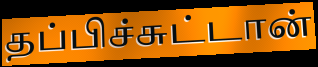
தப்பிச்சுட்டான்